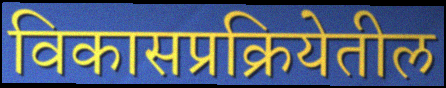
विकासप्रक्रियेतील